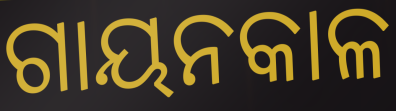
ଗାୟନକାଳ